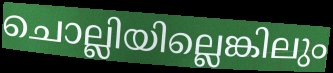
ചൊല്ലിയില്ലെങ്കിലും